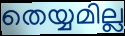
തെയ്യമില്ല